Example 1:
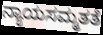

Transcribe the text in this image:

ನ್ಯಾಯಸಮ್ಮತತೆ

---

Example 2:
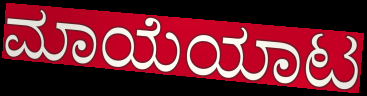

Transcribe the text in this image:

ಮಾಯೆಯಾಟ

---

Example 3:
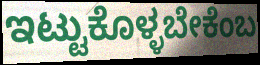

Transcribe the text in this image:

ಇಟ್ಟುಕೊಳ್ಳಬೇಕೆಂಬ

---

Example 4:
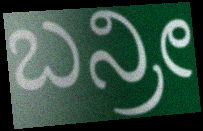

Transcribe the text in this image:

ಬನ್ರೀ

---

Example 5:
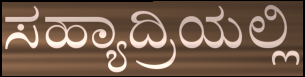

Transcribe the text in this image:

ಸಹ್ಯಾದ್ರಿಯಲ್ಲಿ